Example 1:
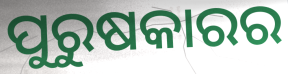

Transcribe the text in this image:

ପୁରୁଷକାରର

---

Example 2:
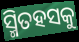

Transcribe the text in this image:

ସ୍ମିତହସକୁ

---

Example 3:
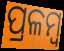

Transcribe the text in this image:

ପ୍ରଳମ୍ବ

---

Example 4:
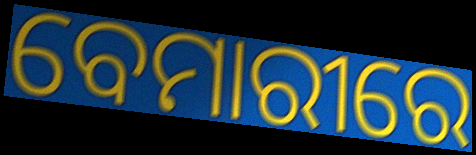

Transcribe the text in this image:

ବେମାରୀରେ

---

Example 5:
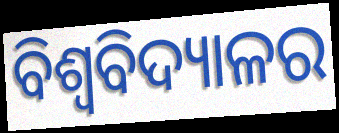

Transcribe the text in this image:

ବିଶ୍ୱବିଦ୍ୟାଳର